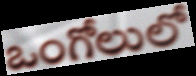
ఒంగోలులో